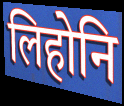
लिहोनि